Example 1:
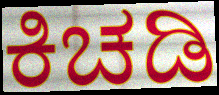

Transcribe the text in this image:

ಕಿಚಡಿ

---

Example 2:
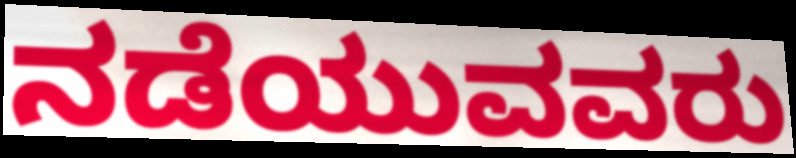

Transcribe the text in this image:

ನಡೆಯುವವರು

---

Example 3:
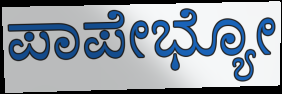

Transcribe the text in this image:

ಪಾಪೇಭ್ಯೋ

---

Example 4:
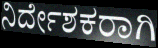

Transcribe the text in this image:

ನಿರ್ದೇಶಕರಾಗಿ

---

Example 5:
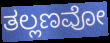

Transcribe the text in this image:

ತಲ್ಲಣವೋ